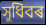
সুধিবৰ